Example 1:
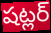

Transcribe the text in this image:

షట్లర్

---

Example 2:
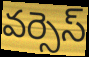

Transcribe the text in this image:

వర్సెస్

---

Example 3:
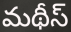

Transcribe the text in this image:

మథీస్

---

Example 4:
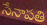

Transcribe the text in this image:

సేనాపతి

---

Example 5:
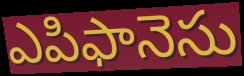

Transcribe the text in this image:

ఎపిఫానెసు